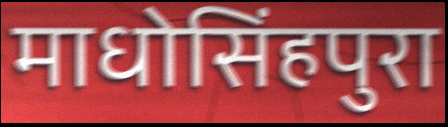
माधोसिंहपुरा